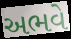
અભવે